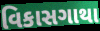
વિકાસગાથા